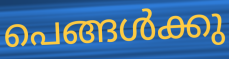
പെങ്ങൾക്കു